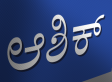
ಆಶಿಕ್